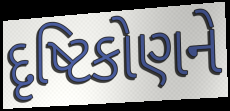
દૃષ્ટિકોણને